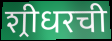
श्रीधरची